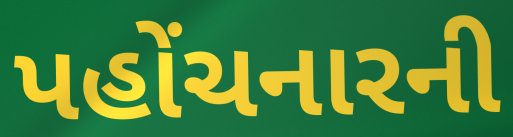
પહોંચનારની